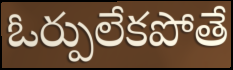
ఓర్పులేకపోతే